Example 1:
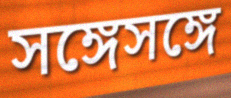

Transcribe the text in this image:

সঙ্গেসঙ্গে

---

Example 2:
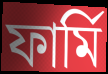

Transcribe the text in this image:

ফার্মি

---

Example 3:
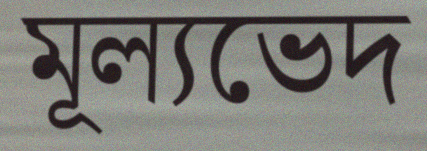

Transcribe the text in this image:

মূল্যভেদ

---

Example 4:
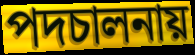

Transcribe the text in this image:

পদচালনায়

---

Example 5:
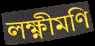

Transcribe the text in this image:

লক্ষ্ণীমণি